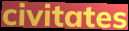
civitates